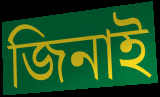
জিনাই